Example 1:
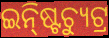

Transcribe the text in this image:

ଇନ୍ଷ୍ଟିଚ୍ୟୁଟ୍ର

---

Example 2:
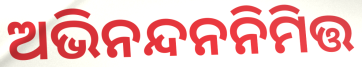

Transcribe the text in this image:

ଅଭିନନ୍ଦନନିମିତ୍ତ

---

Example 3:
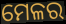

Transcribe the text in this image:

ମେଳର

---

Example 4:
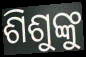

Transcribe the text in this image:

ଶିଶୁଙ୍କୁ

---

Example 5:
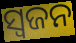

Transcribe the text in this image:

ସ୍ୱଜନ